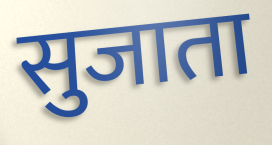
सुजाता